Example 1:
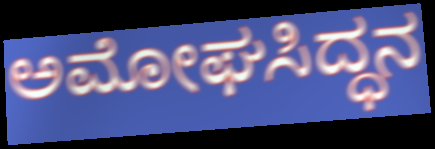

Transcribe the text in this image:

ಅಮೋಘಸಿದ್ಧನ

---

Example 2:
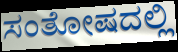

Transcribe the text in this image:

ಸಂತೋಷದಲ್ಲಿ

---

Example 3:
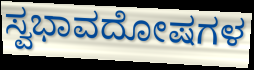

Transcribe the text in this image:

ಸ್ವಭಾವದೋಷಗಳ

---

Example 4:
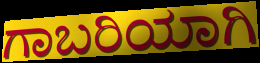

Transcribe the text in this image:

ಗಾಬರಿಯಾಗಿ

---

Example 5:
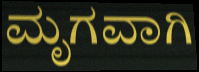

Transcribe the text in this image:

ಮೃಗವಾಗಿ